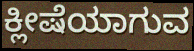
ಕ್ಲೀಷೆಯಾಗುವ